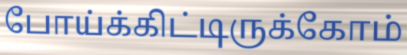
போய்க்கிட்டிருக்கோம்